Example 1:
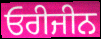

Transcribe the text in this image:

ਓਰੀਜੀਨ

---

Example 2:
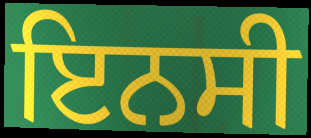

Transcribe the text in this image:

ਇਨਸੀ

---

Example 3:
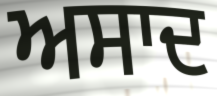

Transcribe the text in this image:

ਅਸਾਦ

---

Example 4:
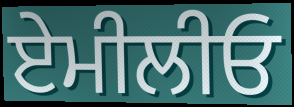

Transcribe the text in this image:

ਏਮੀਲੀਓ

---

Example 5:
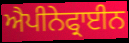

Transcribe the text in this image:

ਐਪੀਨੇਫ੍ਰਾਈਨ